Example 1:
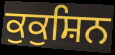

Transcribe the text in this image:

ਕੁਕੁਸ਼ਿਨ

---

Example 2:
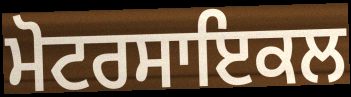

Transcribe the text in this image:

ਮੋਟਰਸਾਇਕਲ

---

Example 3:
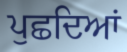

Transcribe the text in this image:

ਪੁਛਦਿਆਂ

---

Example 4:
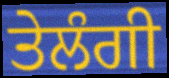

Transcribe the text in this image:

ਤੇਲੰਗੀ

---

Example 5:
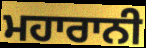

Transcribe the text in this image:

ਮਹਾਰਾਨੀ